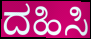
ದಹಿಸಿ